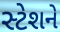
સ્ટેશને